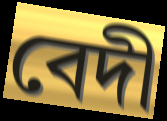
বেদী